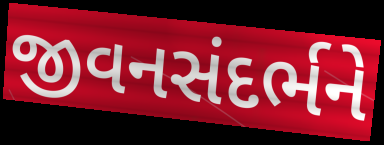
જીવનસંદર્ભને